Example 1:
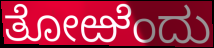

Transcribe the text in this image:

ತೋಱೆಂದು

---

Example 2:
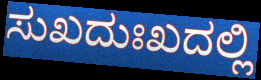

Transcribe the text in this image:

ಸುಖದುಃಖದಲ್ಲಿ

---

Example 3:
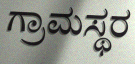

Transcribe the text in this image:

ಗ್ರಾಮಸ್ಥರ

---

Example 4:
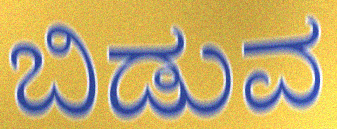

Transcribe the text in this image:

ಬಿಡುವ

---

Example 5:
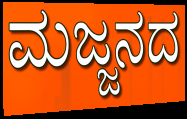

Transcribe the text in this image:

ಮಜ್ಜನದ